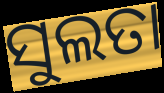
ସୁଲତା